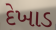
દેખાડ